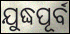
ଯୁଦ୍ଧପୂର୍ବ